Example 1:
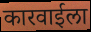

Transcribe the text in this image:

कारवाईला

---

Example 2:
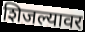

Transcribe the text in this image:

शिजल्यावर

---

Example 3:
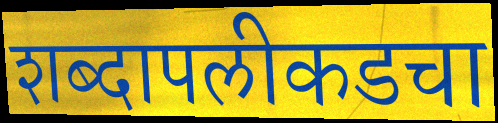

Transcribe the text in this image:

शब्दापलीकडचा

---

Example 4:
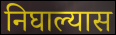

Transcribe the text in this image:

निघाल्यास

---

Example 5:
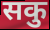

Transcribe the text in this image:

सकु